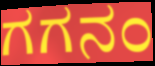
ಗಗನಂ